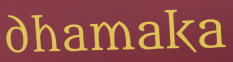
dhamaka